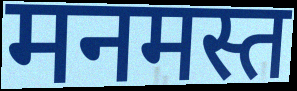
मनमस्त